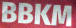
BBKM